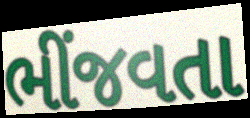
ભીંજવતા